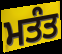
ਮਤੰਤ